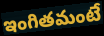
ఇంగితమంటే